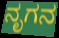
ನೃಗನ